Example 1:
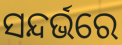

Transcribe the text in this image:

ସନ୍ଦର୍ଭରେ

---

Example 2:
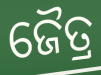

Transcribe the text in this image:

ଜୈତ୍ର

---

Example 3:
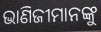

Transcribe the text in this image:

ଭାଣିଜୀମାନଙ୍କୁ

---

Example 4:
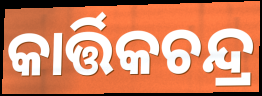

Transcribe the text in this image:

କାର୍ତ୍ତିକଚନ୍ଦ୍ର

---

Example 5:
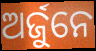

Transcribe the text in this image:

ଅର୍ଜୁନେ